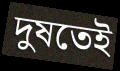
দুষতেই